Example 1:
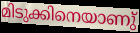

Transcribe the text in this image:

മിടുക്കിനെയാണു്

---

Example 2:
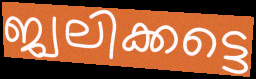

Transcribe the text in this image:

ജ്വലിക്കട്ടെ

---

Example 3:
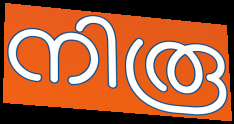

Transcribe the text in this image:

നിരൂ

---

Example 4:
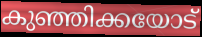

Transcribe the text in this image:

കുഞ്ഞിക്കയോട്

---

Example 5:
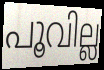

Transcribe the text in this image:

പൂവില്ല